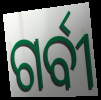
ଗର୍ବୀ